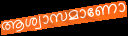
ആശ്വാസമാണോ